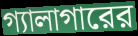
গ্যালাগারের